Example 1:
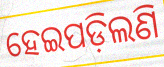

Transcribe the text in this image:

ହେଇପଡ଼ିଲଣି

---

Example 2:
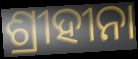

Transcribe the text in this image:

ଶ୍ରୀହୀନା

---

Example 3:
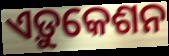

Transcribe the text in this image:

ଏଡ଼ୁକେଶନ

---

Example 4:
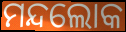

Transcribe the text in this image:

ମନ୍ଦଲୋକ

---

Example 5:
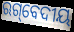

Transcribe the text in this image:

ଋଗ୍‌ବେଦୀୟ